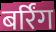
बर्रिंग